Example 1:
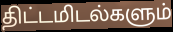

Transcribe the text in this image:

திட்டமிடல்களும்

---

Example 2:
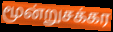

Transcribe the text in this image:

மூன்றுசக்கர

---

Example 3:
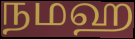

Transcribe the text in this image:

நமஹ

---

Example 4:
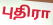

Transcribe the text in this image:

புதிரா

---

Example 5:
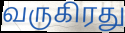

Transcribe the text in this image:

வருகிரது